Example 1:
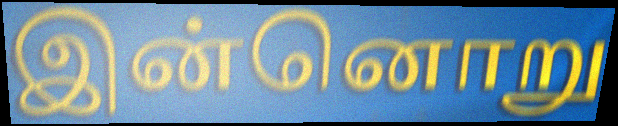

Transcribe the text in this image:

இன்னொறு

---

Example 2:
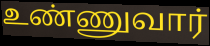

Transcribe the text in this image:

உண்ணுவார்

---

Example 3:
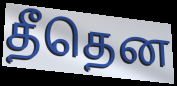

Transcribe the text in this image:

தீதென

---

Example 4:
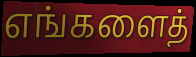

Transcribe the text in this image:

எங்களைத்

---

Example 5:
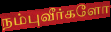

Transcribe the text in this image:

நம்புவீர்களோ